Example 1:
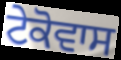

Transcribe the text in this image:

ਟੇਕੋਵਾਸ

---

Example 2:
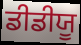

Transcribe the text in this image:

ਡੀਡੀਯੂ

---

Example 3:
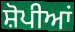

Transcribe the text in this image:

ਸ਼ੋਪੀਆਂ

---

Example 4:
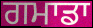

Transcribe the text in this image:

ਗਮਾਡਾ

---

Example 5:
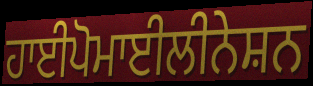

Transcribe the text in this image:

ਹਾਈਪੋਮਾਈਲੀਨੇਸ਼ਨ